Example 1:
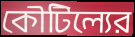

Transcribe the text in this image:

কৌটিল্যের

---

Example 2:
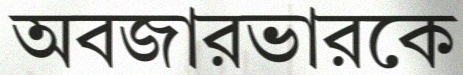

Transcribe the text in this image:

অবজারভারকে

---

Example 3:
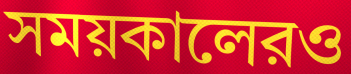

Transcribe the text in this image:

সময়কালেরও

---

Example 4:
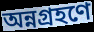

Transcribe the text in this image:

অন্নগ্রহণে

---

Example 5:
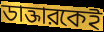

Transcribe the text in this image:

ডাক্তারকেই